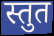
स्तुत